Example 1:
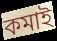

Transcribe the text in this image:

কমাই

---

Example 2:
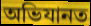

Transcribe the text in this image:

অভিযানত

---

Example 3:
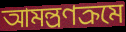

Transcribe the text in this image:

আমন্ত্ৰণক্ৰমে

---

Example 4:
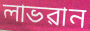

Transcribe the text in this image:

লাভৱান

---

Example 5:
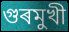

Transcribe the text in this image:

গুৰমুখী